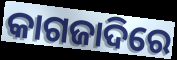
କାଗଜାଦିରେ